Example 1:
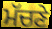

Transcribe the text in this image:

ਮੱਚਣੇ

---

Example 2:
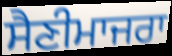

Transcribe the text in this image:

ਸੈਣੀਮਾਜਰਾ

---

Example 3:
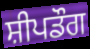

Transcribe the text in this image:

ਸ਼ੀਪਡੌਗ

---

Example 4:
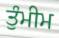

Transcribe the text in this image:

ਤੁੰਮੀਮ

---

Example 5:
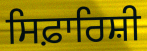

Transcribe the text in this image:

ਸਿਫ਼ਾਰਿਸ਼ੀ